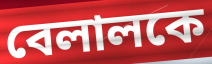
বেলালকে